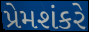
પ્રેમશંકરે